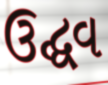
ઉદ્ઘવ